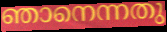
ഞാനെന്നതു